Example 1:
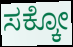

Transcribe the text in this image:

ಸಕ್ಕೋ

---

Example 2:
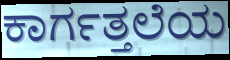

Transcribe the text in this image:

ಕಾರ್ಗತ್ತಲೆಯ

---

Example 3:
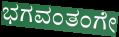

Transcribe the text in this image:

ಭಗವಂತಂಗೇ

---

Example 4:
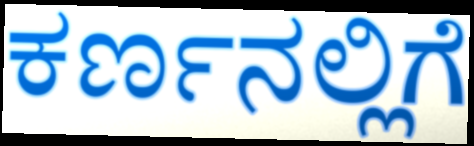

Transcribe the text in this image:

ಕರ್ಣನಲ್ಲಿಗೆ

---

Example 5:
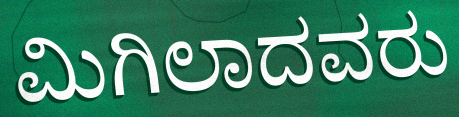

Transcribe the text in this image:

ಮಿಗಿಲಾದವರು